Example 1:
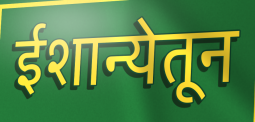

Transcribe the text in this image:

ईशान्येतून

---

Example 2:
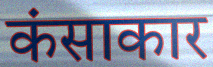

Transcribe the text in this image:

कंसाकार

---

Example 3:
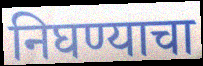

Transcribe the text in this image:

निघण्याचा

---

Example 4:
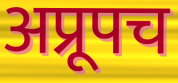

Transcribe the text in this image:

अप्रूपच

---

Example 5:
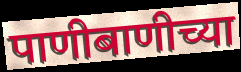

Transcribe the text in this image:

पाणीबाणीच्या